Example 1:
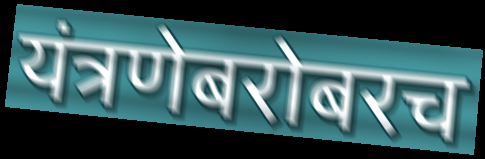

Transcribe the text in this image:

यंत्रणेबरोबरच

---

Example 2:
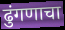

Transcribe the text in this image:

ढुंगणाचा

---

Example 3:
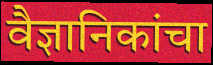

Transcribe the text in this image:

वैज्ञानिकांचा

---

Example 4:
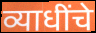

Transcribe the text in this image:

व्याधींचे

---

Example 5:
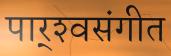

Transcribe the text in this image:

पार्श्वसंगीत